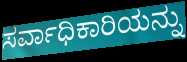
ಸರ್ವಾಧಿಕಾರಿಯನ್ನು